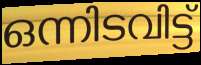
ഒന്നിടവിട്ട്